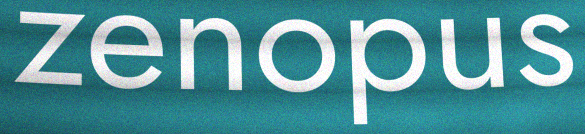
zenopus